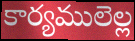
కార్యములెల్ల